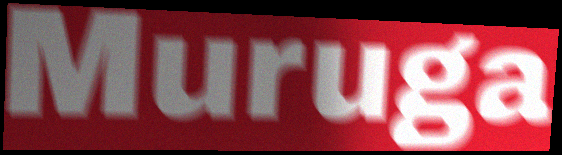
Muruga